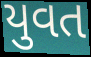
યુવત